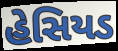
હેસિયડ